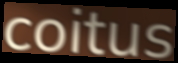
coitus